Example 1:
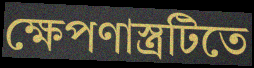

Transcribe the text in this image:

ক্ষেপণাস্ত্রটিতে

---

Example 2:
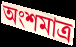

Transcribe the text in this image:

অংশমাত্র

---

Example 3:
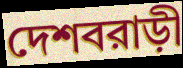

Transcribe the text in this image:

দেশবরাড়ী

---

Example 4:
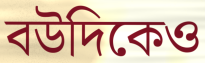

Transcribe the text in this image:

বউদিকেও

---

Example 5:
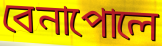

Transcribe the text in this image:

বেনাপোলে